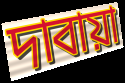
দাবায়া